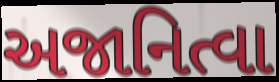
અજાનિત્વા